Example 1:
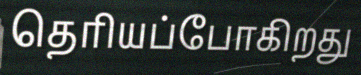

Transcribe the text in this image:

தெரியப்போகிறது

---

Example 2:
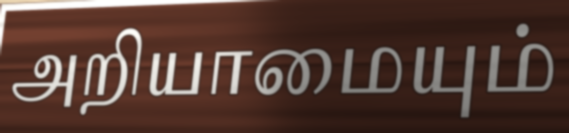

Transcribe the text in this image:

அறியாமையும்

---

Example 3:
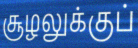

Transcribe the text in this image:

சூழலுக்குப்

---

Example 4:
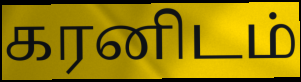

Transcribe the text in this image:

கரனிடம்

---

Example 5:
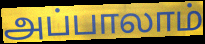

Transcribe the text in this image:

அப்பாலாம்